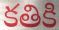
కతికి